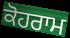
ਕੋਹਰਾਮ